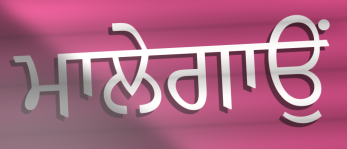
ਮਾਲੇਗਾਉਂ